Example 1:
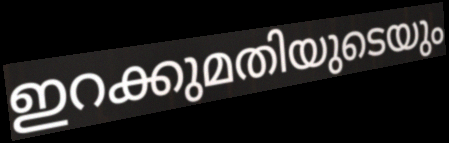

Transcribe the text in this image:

ഇറക്കുമതിയുടെയും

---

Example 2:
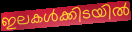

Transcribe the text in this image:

ഇലകൾക്കിടയിൽ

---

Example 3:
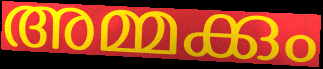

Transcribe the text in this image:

അമ്മക്കും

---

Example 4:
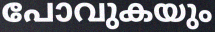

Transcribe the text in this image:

പോവുകയും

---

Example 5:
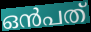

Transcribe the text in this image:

ഒൻപത്